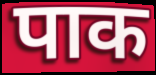
पाक